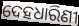
ଦେହଧାରିଣୀ